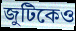
জুটিকেও